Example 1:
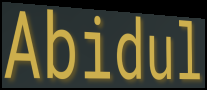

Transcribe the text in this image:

Abidul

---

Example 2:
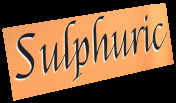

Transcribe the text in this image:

Sulphuric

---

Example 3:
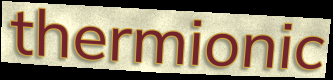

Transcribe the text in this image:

thermionic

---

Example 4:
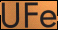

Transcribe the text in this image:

UFe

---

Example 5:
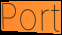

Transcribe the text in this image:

Port